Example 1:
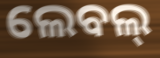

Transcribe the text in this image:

ଲେବଲ୍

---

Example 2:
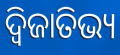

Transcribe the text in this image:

ଦ୍ବିଜାତିଭ୍ୟ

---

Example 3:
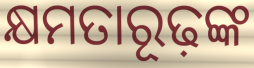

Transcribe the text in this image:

କ୍ଷମତାରୂଢ଼ଙ୍କ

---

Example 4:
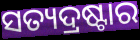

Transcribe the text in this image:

ସତ୍ୟଦ୍ରଷ୍ଟାର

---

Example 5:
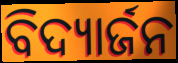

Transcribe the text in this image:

ବିଦ୍ୟାର୍ଜନ